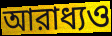
আরাধ্যও